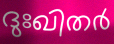
ദുഃഖിതർ